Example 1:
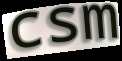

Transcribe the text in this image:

csm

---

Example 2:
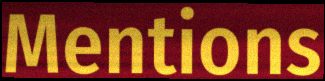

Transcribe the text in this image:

Mentions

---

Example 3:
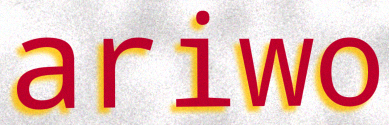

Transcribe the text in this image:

ariwo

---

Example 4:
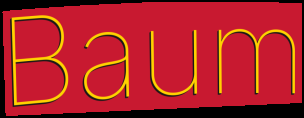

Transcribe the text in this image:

Baum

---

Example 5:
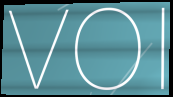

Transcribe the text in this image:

VOI